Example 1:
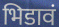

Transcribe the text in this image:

भिडावं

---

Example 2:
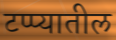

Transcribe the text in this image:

टप्प्यातील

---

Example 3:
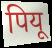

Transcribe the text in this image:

पियू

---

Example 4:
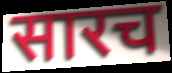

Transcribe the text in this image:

सारच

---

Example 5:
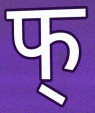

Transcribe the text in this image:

फ्